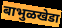
बाभुळखेडा